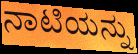
ನಾಟಿಯನ್ನು